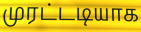
முரட்டடியாக